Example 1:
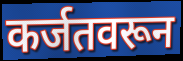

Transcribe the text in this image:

कर्जतवरून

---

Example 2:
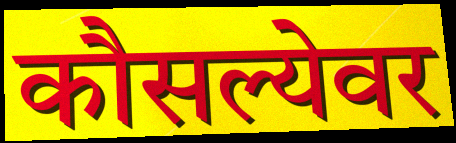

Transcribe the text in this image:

कौसल्येवर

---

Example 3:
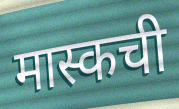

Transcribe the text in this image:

मास्कची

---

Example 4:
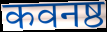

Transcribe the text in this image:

कवनष्ठ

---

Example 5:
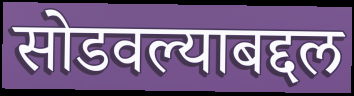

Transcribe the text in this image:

सोडवल्याबद्दल